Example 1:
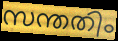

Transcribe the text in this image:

സന്തതിം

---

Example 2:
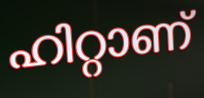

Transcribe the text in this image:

ഹിറ്റാണ്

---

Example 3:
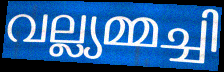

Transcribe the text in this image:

വല്ല്യമ്മച്ചി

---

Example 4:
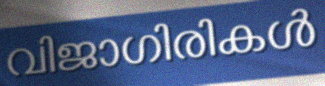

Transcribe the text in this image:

വിജാഗിരികൾ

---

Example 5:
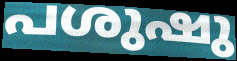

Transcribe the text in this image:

പശുഷു